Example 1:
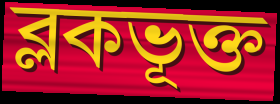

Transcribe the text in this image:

ব্লকভূক্ত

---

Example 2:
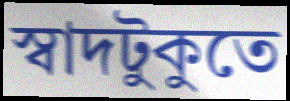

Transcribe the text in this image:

স্বাদটুকুতে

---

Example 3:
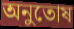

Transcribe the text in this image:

অনুতোষ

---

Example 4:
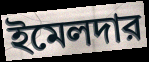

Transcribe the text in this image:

ইমেলদার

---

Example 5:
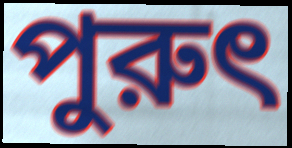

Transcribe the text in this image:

পুরুৎ